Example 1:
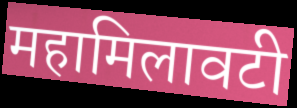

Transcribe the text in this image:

महामिलावटी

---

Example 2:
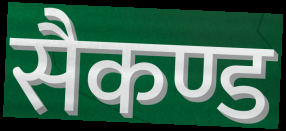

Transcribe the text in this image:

सैकण्ड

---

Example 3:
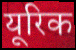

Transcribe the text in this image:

यूरिक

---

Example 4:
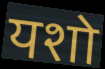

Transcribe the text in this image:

यशो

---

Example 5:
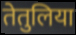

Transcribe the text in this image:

तेतुलिया